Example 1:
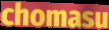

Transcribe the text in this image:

chomasu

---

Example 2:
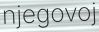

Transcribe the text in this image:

njegovoj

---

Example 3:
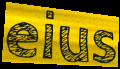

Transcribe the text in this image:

eius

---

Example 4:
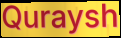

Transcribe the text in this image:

Quraysh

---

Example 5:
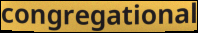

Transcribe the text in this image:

congregational